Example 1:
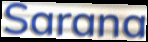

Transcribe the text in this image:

Sarana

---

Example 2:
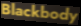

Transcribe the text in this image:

Blackbody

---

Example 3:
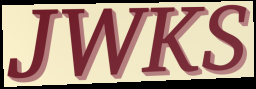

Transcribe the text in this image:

JWKS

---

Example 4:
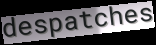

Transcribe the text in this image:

despatches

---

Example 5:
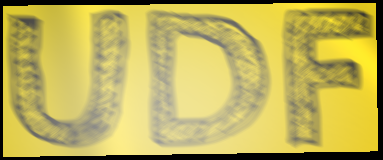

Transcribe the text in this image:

UDF